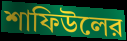
শাফিউলের